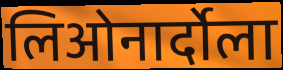
लिओनार्दोला